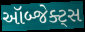
ઑબ્જેક્ટ્સ